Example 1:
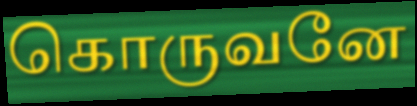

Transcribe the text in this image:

கொருவனே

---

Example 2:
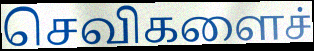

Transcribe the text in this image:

செவிகளைச்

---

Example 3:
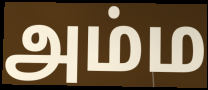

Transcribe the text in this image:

அம்ம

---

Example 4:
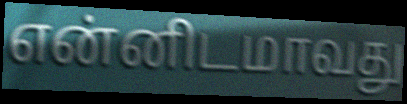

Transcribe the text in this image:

என்னிடமாவது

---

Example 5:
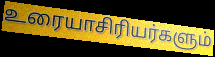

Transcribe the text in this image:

உரையாசிரியர்களும்